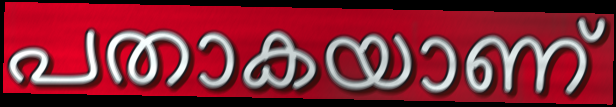
പതാകയാണ്